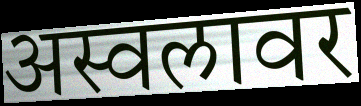
अस्वलावर